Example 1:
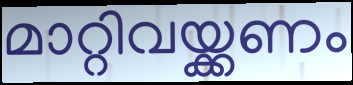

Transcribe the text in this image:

മാറ്റിവയ്ക്കണം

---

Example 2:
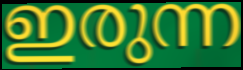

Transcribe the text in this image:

ഇരുന്ന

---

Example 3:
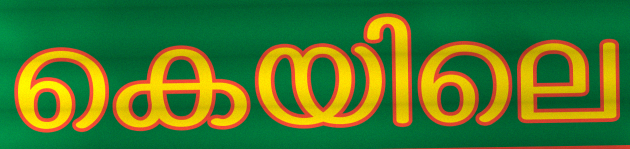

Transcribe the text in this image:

കെയിലെ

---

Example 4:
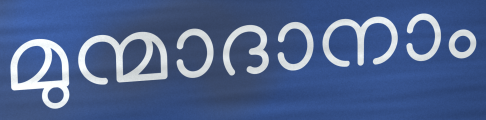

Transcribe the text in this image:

മുന്മാദാനാം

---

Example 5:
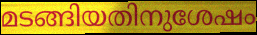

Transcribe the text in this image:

മടങ്ങിയതിനുശേഷം